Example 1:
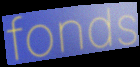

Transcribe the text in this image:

fonds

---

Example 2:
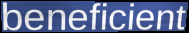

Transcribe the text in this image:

beneficient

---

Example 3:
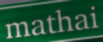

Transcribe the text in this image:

mathai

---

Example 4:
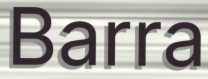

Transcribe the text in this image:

Barra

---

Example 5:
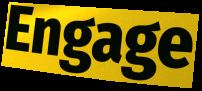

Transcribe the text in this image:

Engage